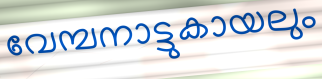
വേമ്പനാട്ടുകായലും